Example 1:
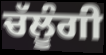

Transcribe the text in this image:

ਚੱਲੂੰਗੀ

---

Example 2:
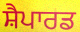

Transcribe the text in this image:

ਸ਼ੈਪਾਰਡ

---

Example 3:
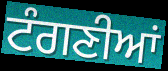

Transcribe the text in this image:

ਟੰਗਣੀਆਂ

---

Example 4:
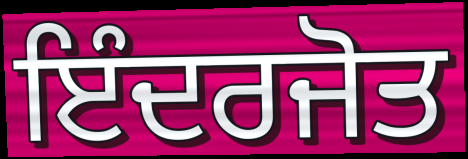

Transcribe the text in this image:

ਇੰਦਰਜੋਤ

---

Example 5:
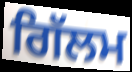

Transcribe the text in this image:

ਗਿੱਲਮ